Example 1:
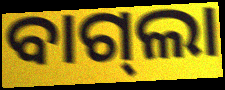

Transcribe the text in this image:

ବାଗ୍‍ଲା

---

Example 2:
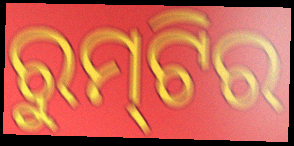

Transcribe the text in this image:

ରୁମ୍‌ଟିର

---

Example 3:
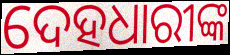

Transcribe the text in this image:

ଦେହଧାରୀଙ୍କ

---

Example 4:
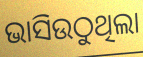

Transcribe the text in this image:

ଭାସିଉଠୁଥିଲା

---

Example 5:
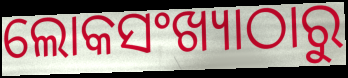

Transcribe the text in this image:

ଲୋକସଂଖ୍ୟାଠାରୁ